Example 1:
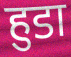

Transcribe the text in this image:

हुडा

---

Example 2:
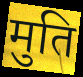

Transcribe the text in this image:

मुति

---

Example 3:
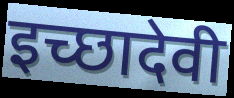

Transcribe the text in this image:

इच्छादेवी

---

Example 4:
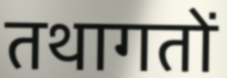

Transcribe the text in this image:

तथागतों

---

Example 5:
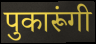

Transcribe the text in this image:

पुकारूंगी